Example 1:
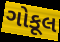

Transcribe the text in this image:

ગોકૂલ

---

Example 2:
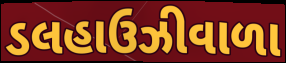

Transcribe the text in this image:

ડલહાઉઝીવાળા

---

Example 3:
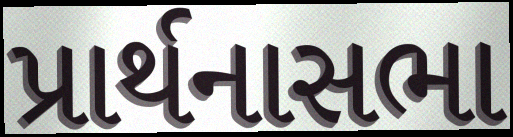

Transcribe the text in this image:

પ્રાર્થનાસભા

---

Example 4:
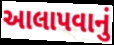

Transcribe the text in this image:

આલાપવાનું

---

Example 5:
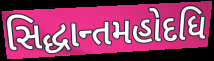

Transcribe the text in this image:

સિદ્ધાન્તમહોદધિ